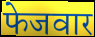
फेजवार